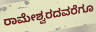
ರಾಮೇಶ್ವರದವರೆಗೂ